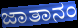
ಜಾತಾನಂ